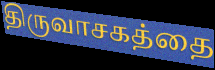
திருவாசகத்தை